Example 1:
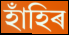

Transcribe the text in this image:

হাঁহিৰ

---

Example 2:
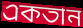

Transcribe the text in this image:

একতান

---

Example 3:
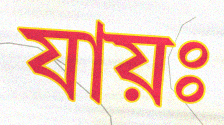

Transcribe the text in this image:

যায়ঃ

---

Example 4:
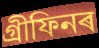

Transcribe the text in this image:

গ্ৰীফিনৰ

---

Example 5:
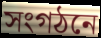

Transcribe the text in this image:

সংগঠনে